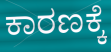
ಕಾರಣಕ್ಕೆ